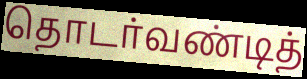
தொடர்வண்டித்